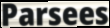
Parsees